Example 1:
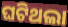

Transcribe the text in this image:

ଘଟିଥଲା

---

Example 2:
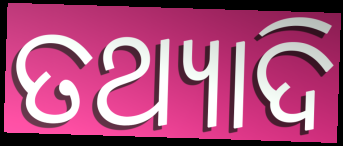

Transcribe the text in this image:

ତଥ୍ୟାଦି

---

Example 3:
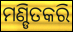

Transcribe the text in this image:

ମଣ୍ଡିତକରି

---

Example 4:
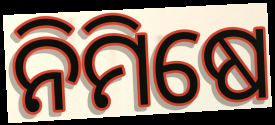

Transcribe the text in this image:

ନିମିଷେ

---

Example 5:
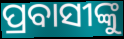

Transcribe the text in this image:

ପ୍ରବାସୀଙ୍କୁ